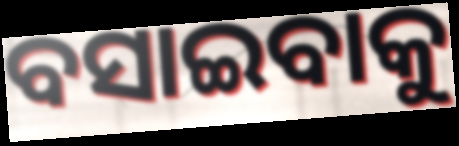
ବସାଇବାକୁ